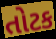
તોટક